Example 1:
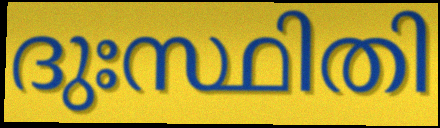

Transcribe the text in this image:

ദുഃസ്ഥിതി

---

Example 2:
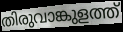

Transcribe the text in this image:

തിരുവാങ്കുളത്ത്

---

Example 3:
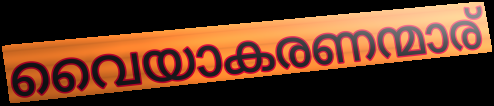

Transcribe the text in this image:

വൈയാകരണന്മാര്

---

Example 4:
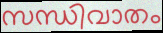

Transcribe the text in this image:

സന്ധിവാതം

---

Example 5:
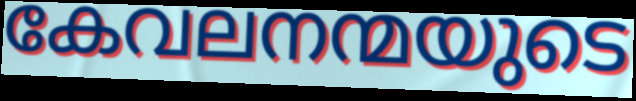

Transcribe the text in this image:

കേവലനന്മയുടെ